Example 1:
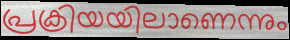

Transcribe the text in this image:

പ്രക്രിയയിലാണെന്നും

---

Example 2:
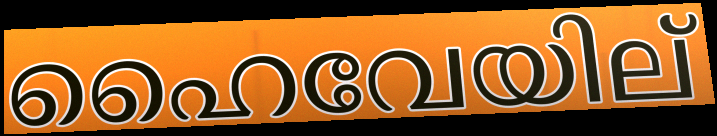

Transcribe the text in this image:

ഹൈവേയില്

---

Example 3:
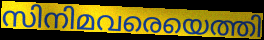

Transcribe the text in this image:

സിനിമവരെയെത്തി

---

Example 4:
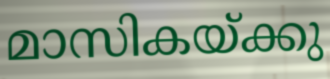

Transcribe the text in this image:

മാസികയ്ക്കു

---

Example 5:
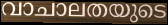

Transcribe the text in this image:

വാചാലതയുടെ